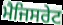
ਮੈਜਿਸਰੇਟ